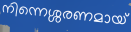
നിന്നെശ്ശരണമായ്